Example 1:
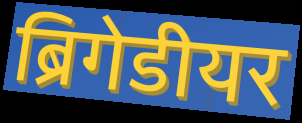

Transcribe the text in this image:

ब्रिगेडीयर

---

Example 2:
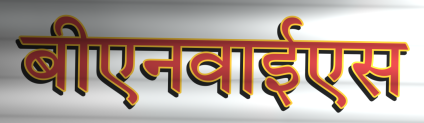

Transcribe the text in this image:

बीएनवाईएस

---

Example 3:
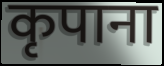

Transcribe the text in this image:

कृपाना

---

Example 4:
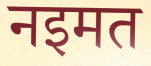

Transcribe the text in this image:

नइमत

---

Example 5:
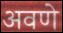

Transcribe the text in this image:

अवणे